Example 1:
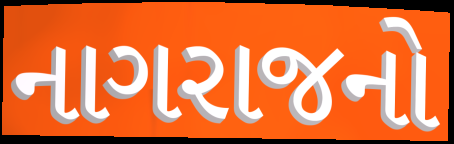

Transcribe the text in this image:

નાગરાજનો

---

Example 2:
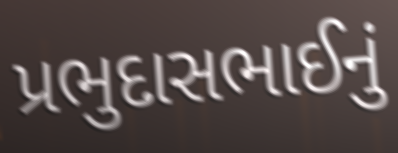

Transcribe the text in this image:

પ્રભુદાસભાઈનું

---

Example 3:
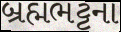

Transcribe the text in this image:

બ્રહ્મભટ્ટના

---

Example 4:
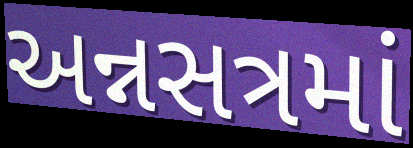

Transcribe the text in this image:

અન્નસત્રમાં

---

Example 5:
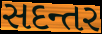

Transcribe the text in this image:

સદન્તર